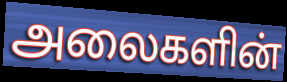
அலைகளின்